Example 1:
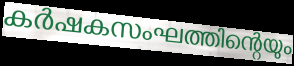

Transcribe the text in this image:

കർഷകസംഘത്തിന്റെയും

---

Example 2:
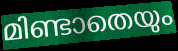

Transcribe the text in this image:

മിണ്ടാതെയും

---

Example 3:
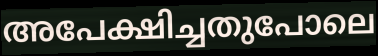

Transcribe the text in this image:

അപേക്ഷിച്ചതുപോലെ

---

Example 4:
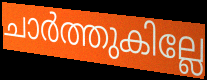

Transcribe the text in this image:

ചാർത്തുകില്ലേ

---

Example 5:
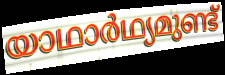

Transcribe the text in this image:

യാഥാർഥ്യമുണ്ട്